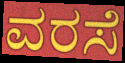
ವರಸೆ